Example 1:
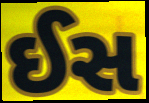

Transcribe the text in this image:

ઈસ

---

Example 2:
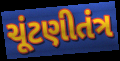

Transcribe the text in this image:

ચૂંટણીતંત્ર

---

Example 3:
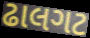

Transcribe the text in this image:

ઢાલગટ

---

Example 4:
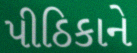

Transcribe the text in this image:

પીઠિકાને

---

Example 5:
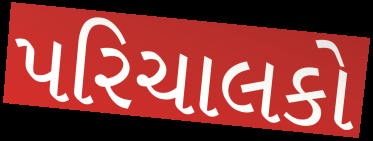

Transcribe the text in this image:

પરિચાલકો